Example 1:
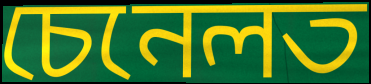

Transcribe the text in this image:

চেনেলত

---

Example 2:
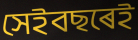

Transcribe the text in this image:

সেইবছৰেই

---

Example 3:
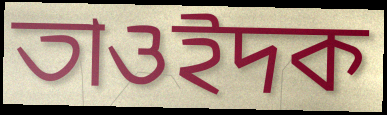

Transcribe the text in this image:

তাওইদক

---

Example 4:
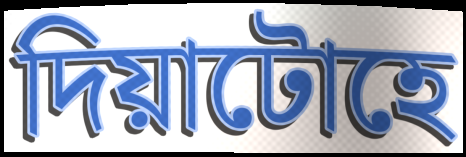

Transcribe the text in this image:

দিয়াটোহে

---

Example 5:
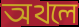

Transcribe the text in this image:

অথলে